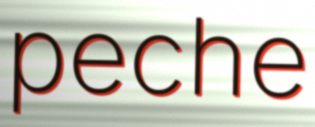
peche